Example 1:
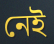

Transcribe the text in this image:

নেই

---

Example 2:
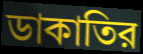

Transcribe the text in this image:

ডাকাতির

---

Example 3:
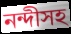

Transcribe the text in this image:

নন্দীসহ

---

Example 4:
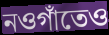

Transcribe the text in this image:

নওগাঁতেও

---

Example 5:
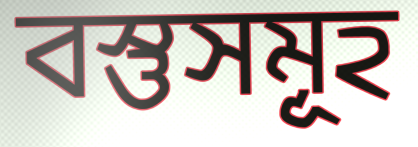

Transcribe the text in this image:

বস্তুসমূহ